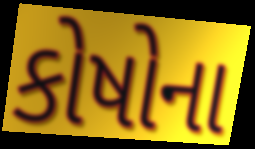
કોષોના